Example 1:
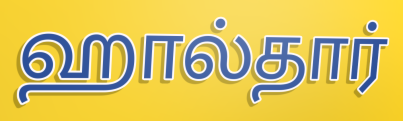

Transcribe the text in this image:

ஹால்தார்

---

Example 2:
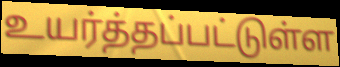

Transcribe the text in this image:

உயர்த்தப்பட்டுள்ள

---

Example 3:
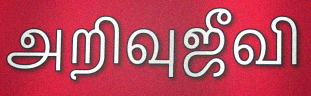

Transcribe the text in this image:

அறிவுஜீவி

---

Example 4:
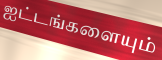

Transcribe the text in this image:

ஐட்டங்களையும்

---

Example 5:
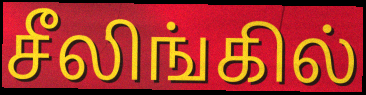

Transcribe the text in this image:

சீலிங்கில்